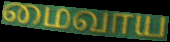
மைவாய